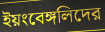
ইয়ংবেঙ্গলিদের